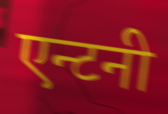
एन्टनी